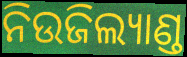
ନିଉଜିଲ୍ୟାଣ୍ଡ